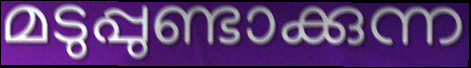
മടുപ്പുണ്ടാക്കുന്ന